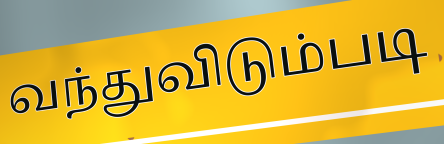
வந்துவிடும்படி